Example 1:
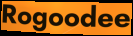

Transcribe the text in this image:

Rogoodee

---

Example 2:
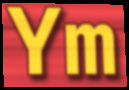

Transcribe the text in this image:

Ym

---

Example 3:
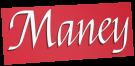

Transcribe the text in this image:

Maney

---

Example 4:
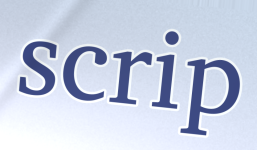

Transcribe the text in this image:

scrip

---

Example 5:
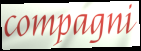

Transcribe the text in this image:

compagni